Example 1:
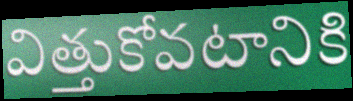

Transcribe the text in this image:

విత్తుకోవటానికి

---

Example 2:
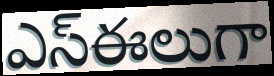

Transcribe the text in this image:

ఎస్ఈలుగా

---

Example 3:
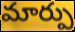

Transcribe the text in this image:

మార్పు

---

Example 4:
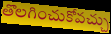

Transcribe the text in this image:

తొలగించుకోవచ్చు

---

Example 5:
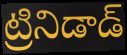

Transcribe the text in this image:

ట్రినిడాడ్